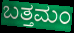
ಬತ್ತಮಂ